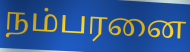
நம்பரனை